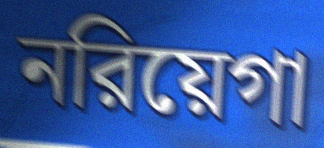
নরিয়েগা